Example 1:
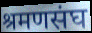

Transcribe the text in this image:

श्रमणसंघ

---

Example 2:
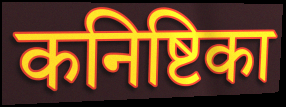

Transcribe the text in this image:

कनिष्टिका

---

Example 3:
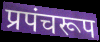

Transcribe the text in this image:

प्रपंचरूप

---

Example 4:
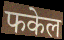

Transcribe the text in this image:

फकेल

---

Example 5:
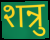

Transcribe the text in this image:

शन्रु